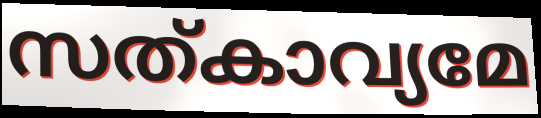
സത്കാവ്യമേ